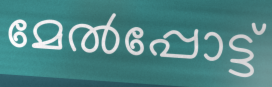
മേൽപ്പോട്ട്